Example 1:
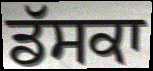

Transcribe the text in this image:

ਡੱਸਕਾ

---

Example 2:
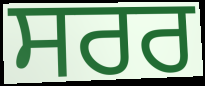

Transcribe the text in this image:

ਸਰਰ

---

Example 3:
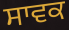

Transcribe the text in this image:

ਸਾਵਕ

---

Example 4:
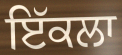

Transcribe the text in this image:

ਇੱਕਲਾ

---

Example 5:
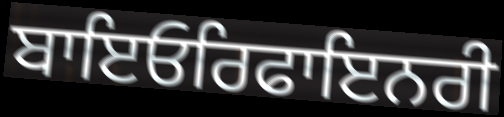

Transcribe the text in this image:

ਬਾਇਓਰਿਫਾਇਨਰੀ